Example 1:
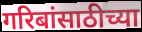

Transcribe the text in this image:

गरिबांसाठीच्या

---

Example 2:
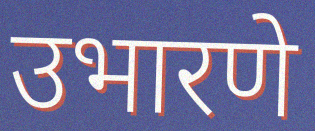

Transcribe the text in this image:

उभारणे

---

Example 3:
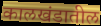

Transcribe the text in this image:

कालखंडातील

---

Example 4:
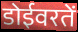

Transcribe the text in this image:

डोईवरतें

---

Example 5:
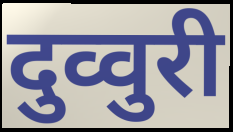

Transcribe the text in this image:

दुव्वुरी